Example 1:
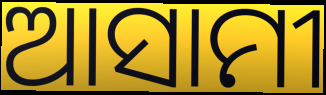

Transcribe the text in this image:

ଆସାମୀ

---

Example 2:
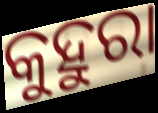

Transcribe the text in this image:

କୁହୁରା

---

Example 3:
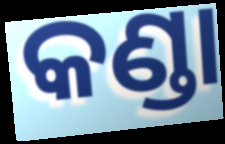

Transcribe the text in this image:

କଣ୍ଡା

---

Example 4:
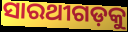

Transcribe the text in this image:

ସାରଥୀଗଡ଼କୁ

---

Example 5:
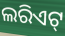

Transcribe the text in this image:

ଲରିଏଟ୍